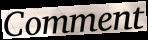
Comment